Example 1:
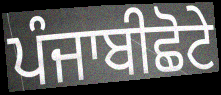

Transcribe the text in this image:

ਪੰਜਾਬੀਛੋਟੇ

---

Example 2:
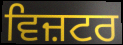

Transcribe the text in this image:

ਵਿਜ਼ਟਰ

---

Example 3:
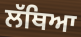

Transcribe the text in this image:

ਲੱਥਿਆ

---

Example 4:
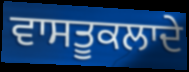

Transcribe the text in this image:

ਵਾਸਤੂਕਲਾਦੇ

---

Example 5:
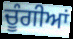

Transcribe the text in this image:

ਚੂੰਗੀਆਂ